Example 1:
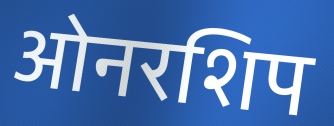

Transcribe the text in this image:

ओनरशिप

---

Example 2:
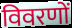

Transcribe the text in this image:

विवरणों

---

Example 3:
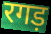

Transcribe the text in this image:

रगड़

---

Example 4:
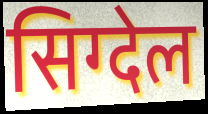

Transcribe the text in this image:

सिग्देल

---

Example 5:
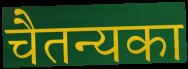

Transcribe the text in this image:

चैतन्यका